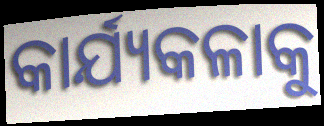
କାର୍ଯ୍ୟକଳାକୁ